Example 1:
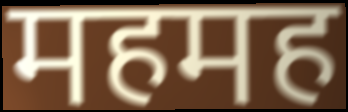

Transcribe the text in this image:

महमह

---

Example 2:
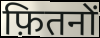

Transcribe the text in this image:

फ़ितनों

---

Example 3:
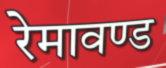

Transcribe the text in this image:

रेमावण्ड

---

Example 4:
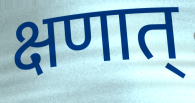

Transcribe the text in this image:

क्षणात्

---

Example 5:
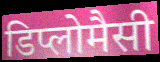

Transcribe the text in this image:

डिप्लोमैसी